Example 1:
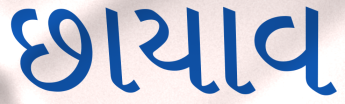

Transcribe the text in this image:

છાયાવ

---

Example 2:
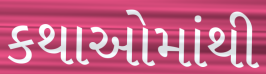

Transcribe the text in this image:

કથાઓમાંથી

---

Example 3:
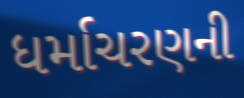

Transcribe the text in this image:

ધર્માચરણની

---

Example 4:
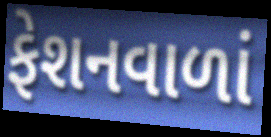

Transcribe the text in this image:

ફેશનવાળાં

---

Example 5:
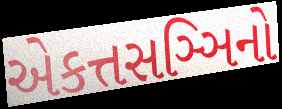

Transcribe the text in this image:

એકત્તસઞ્ઞિનો